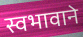
स्वभावाने